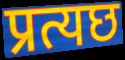
प्रत्यछ